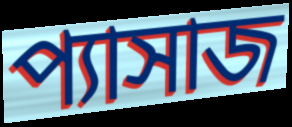
প্যাসাজ